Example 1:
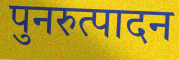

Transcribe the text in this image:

पुनरुत्पादन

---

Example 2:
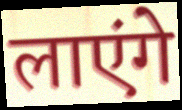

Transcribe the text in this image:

लाएंगे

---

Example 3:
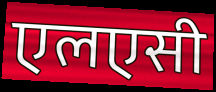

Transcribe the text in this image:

एलएसी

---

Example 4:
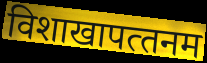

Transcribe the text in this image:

विशाखापत्‍तनम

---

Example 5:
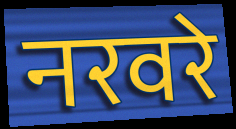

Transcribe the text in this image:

नरवरे